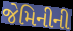
જેમિનીની